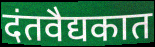
दंतवैद्यकात